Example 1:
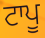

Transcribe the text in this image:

ਟਾਪੂ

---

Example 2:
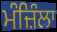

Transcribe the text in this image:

ਮੰਜ਼ਿੰਲਾ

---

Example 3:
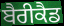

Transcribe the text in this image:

ਬੈਰੀਕੈਡ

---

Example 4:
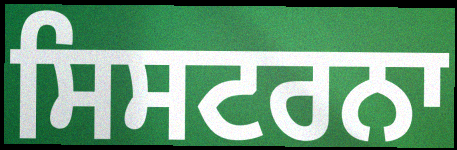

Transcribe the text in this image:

ਸਿਸਟਰਨਾ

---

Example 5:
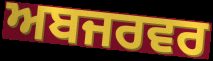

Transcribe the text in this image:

ਅਬਜਰਵਰ